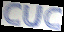
CUC